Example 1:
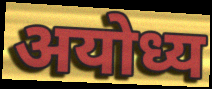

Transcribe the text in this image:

अयोध्य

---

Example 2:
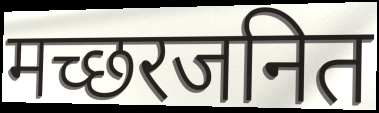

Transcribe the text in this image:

मच्छरजनित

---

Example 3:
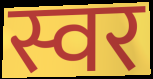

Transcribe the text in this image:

स्‍वर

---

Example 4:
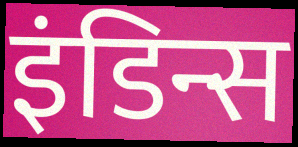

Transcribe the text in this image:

इंडिन्स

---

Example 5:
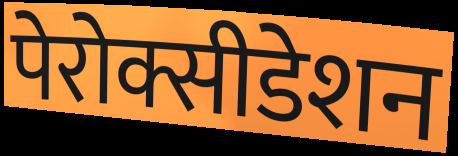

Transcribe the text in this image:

पेरोक्सीडेशन